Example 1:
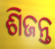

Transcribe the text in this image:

ଶିଜନ୍ତ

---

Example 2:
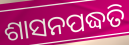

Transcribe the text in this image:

ଶାସନପଦ୍ଧତି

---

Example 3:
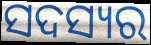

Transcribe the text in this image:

ସଦସ୍ୟର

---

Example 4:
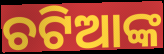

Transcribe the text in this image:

ଚଟିଆଙ୍କ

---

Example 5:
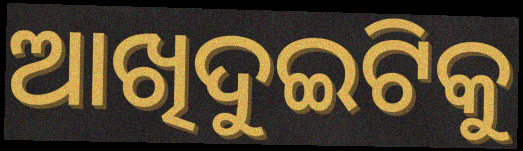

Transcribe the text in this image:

ଆଖିଦୁଇଟିକୁ